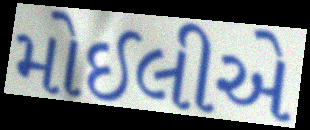
મોઈલીએ